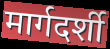
मार्गदर्शी